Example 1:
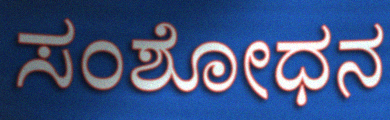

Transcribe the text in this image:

ಸಂಶೋಧನ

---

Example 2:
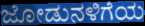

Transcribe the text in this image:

ಜೋಡುನಳಿಗೆಯ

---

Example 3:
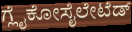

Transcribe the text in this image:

ಗ್ಲೈಕೋಸೈಲೇಟೆಡ್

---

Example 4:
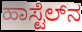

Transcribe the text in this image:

ಹಾಸ್ಟೆಲ್‌ನ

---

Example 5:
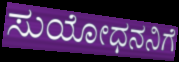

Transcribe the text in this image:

ಸುಯೋಧನನಿಗೆ